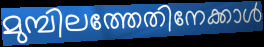
മുമ്പിലത്തേതിനേക്കാൾ